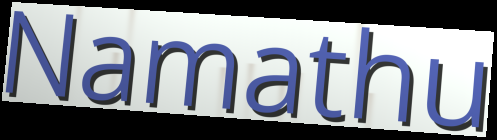
Namathu